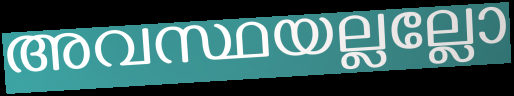
അവസ്ഥയല്ലല്ലോ